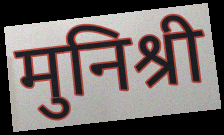
मुनिश्री